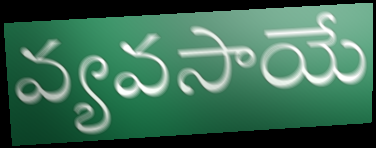
వ్యవసాయే